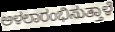
ಅಳಲಾರಂಭಿಸುತ್ತಾಳೆ